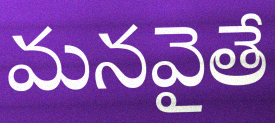
మనవైతే